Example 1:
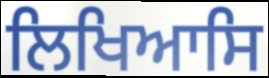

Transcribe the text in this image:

ਲਿਖਿਆਸਿ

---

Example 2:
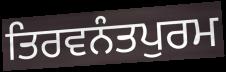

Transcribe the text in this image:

ਤਿਰਵਨੰਤਪੁਰਮ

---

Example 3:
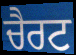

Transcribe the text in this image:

ਚੈਰਟ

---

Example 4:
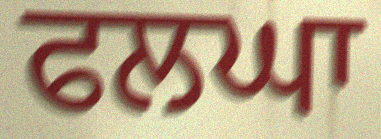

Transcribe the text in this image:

ਫਲਘਾ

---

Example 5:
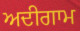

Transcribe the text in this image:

ਅਦੀਗਾਮ